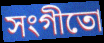
সংগীতো